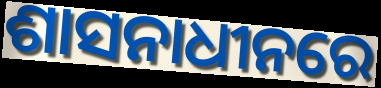
ଶାସନାଧୀନରେ